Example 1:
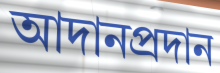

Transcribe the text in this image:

আদানপ্রদান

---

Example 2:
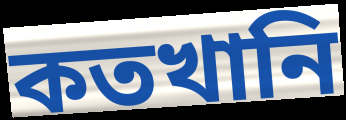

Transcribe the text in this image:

কতখানি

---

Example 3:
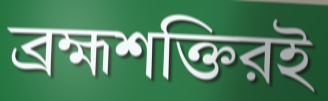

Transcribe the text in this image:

ব্রহ্মশক্তিরই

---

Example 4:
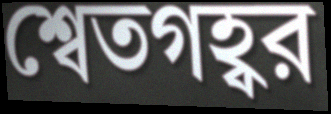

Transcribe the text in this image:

শ্বেতগহ্বর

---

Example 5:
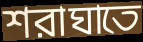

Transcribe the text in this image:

শরাঘাতে